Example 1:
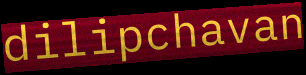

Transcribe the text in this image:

dilipchavan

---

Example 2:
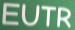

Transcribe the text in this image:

EUTR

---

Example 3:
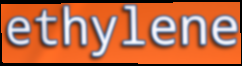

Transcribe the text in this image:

ethylene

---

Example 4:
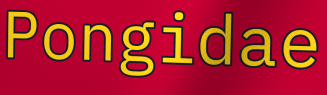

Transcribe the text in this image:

Pongidae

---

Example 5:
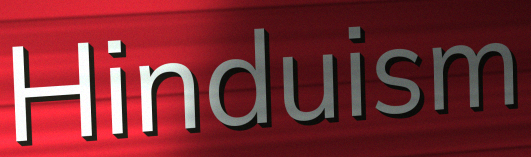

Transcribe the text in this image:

Hinduism